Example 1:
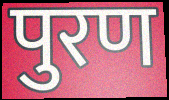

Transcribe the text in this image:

पुरण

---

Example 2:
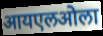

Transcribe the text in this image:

आयएलओला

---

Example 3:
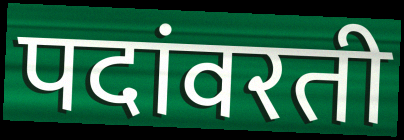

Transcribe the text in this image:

पदांवरती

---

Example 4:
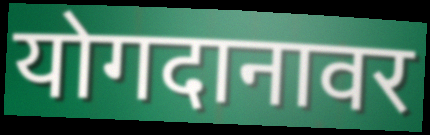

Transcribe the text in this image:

योगदानावर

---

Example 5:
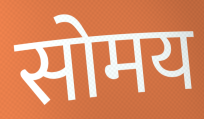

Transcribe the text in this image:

सोमय